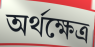
অৰ্থক্ষেত্ৰ